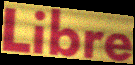
Libre